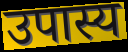
उपास्य